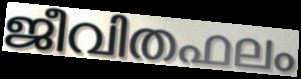
ജീവിതഫലം